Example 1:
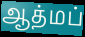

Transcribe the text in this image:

ஆத்மப்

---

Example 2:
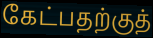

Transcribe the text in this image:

கேட்பதற்குத்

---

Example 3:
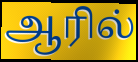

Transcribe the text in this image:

ஆரில்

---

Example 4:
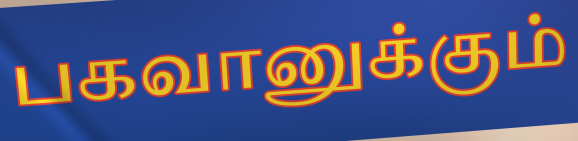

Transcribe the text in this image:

பகவானுக்கும்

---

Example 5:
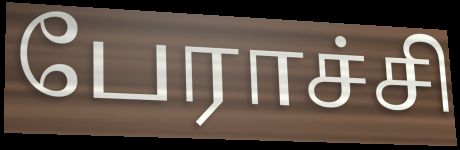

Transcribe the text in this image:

பேராச்சி